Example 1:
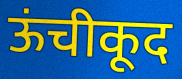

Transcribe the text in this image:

ऊंचीकूद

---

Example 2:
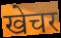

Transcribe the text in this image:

खेचर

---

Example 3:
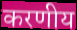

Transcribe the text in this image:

करणीय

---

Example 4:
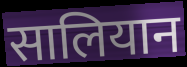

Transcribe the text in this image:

सालियान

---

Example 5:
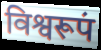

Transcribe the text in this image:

विश्वरूपं